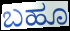
ಬಹೂ